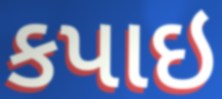
કપાઇ